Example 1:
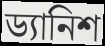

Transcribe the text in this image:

ড্যানিশ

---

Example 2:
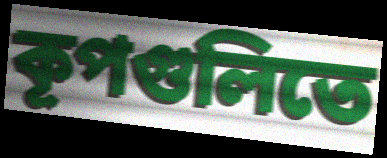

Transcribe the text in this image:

কূপগুলিতে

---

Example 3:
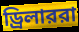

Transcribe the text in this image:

ড্রিলাররা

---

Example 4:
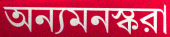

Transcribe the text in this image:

অন্যমনস্করা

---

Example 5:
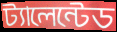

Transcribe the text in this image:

ট্যালেন্টেড